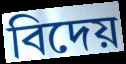
বিদেয়